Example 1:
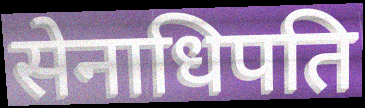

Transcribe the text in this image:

सेनाधिपति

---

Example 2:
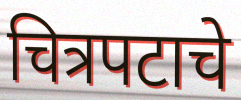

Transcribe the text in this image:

चित्रपटाचे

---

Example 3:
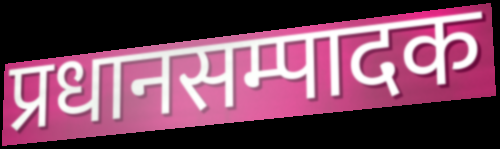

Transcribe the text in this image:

प्रधानसम्पादक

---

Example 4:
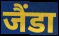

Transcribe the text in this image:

जैंडा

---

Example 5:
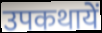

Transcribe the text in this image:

उपकथायें